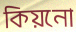
কিয়নো